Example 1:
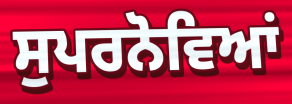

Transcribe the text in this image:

ਸੁਪਰਨੋਵਿਆਂ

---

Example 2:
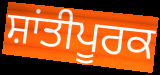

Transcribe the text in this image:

ਸ਼ਾਂਤੀਪੂਰਕ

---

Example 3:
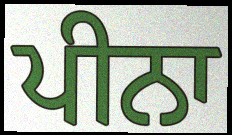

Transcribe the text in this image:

ਪੀਨਾ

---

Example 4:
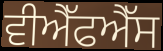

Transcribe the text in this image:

ਵੀਐੱਫਐੱਸ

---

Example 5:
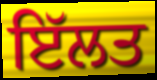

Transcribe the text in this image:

ਇੱਲਤ